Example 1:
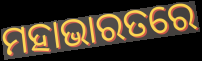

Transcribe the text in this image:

ମହାଭାରତରେ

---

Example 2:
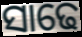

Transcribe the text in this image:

ସାଢେ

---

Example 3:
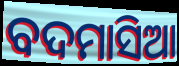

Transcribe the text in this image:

ବଦମାସିଆ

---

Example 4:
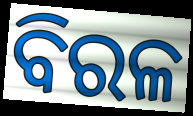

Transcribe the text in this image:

ବିରଳ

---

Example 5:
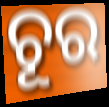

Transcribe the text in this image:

ଚୂର